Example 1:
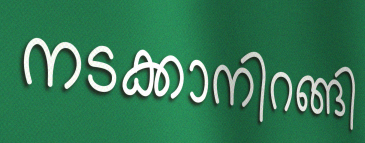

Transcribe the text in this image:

നടക്കാനിറങ്ങി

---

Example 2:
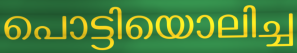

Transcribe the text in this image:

പൊട്ടിയൊലിച്ച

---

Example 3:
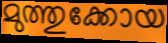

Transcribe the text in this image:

മുത്തുക്കോയ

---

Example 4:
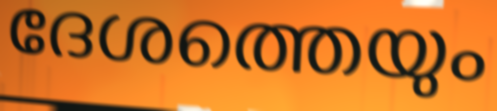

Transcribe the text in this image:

ദേശത്തെയും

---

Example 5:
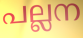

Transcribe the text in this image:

പല്ലന